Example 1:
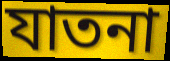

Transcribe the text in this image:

যাতনা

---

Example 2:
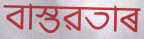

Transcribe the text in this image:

বাস্তৱতাৰ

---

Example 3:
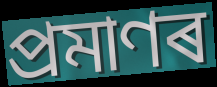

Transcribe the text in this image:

প্ৰমাণৰ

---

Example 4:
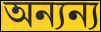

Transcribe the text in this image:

অন্যন্য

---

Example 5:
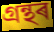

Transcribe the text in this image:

গ্ৰন্থৰ